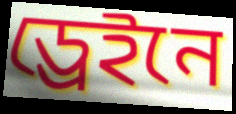
ড্রেইনে